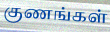
குணங்கள்